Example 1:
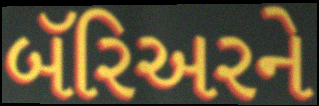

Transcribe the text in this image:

બૅરિઅરને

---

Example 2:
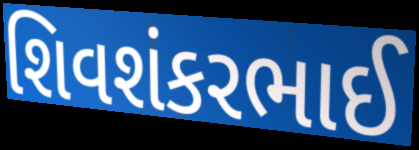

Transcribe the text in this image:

શિવશંકરભાઈ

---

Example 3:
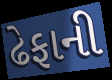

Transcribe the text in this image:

ઢેફાની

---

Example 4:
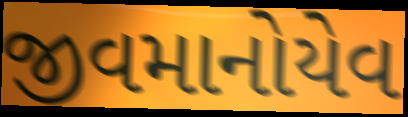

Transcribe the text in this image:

જીવમાનોયેવ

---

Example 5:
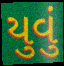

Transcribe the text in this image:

યુવું